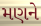
મણને